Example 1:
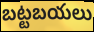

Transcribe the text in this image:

బట్టబయలు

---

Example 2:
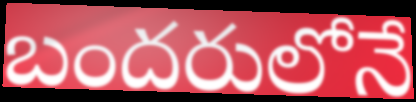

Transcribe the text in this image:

బందరులోనే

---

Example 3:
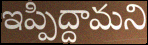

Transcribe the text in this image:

ఇప్పిద్దామని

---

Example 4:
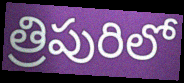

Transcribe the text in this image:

త్రిపురిలో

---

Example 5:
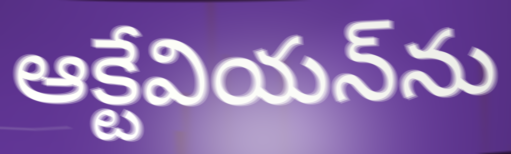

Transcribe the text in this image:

ఆక్టేవియన్‌ను